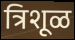
त्रिशूळ